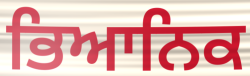
ਭਿਆਨਿਕ